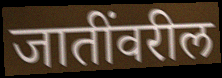
जातींवरील